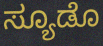
ಸ್ಯೂಡೊ